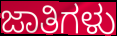
ಜಾತಿಗಳು